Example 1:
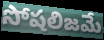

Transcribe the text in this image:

సోషలిజమే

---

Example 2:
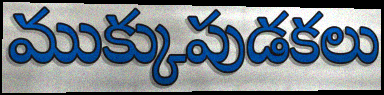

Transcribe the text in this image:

ముక్కుపుడకలు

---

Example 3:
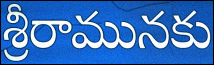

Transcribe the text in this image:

శ్రీరామునకు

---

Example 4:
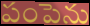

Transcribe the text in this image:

పంపెను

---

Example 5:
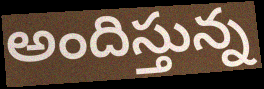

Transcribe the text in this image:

అందిస్తున్న